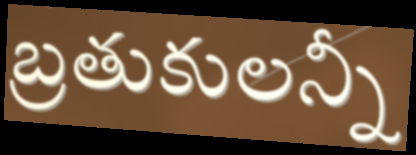
బ్రతుకులన్నీ